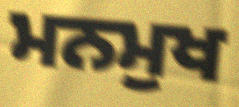
ਮਨਮੁਖ